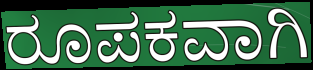
ರೂಪಕವಾಗಿ